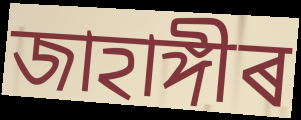
জাহাঙ্গীৰ